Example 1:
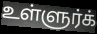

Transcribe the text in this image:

உள்ளுர்க்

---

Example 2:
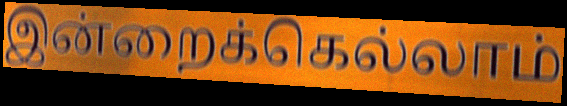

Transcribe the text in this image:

இன்றைக்கெல்லாம்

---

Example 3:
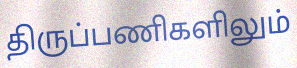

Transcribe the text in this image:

திருப்பணிகளிலும்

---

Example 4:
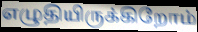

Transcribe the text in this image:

எழுதியிருக்கிறோம்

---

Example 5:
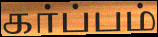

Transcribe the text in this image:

கர்ப்பம்